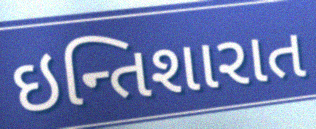
ઇન્તિશારાત